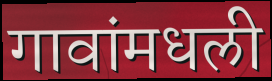
गावांमधली